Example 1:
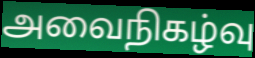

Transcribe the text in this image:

அவைநிகழ்வு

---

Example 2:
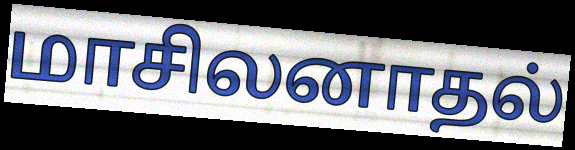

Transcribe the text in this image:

மாசிலனாதல்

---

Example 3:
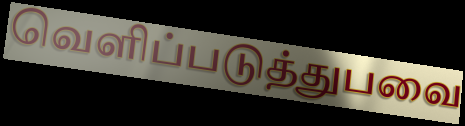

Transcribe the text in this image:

வெளிப்படுத்துபவை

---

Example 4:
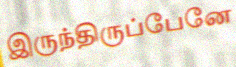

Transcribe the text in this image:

இருந்திருப்பேனே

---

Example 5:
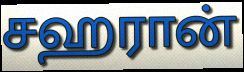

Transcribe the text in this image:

சஹரான்